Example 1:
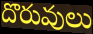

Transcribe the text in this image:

దొరువులు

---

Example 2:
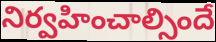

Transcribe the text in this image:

నిర్వహించాల్సిందే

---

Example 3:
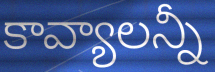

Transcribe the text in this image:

కావ్యాలన్నీ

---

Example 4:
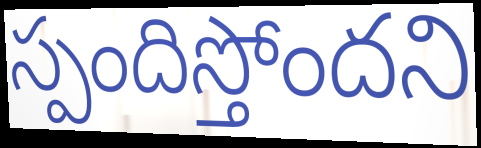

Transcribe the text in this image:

స్పందిస్తోందని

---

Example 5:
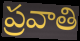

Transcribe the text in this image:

ప్రవాతి